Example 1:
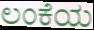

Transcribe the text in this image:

ಲಂಕೆಯ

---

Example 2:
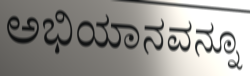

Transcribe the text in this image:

ಅಭಿಯಾನವನ್ನೂ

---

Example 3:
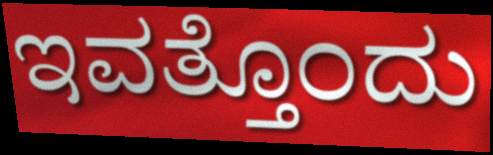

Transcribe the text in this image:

ಇವತ್ತೊಂದು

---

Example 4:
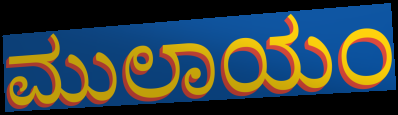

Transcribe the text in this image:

ಮುಲಾಯಂ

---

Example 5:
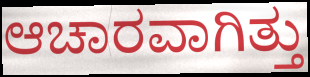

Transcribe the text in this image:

ಆಚಾರವಾಗಿತ್ತು